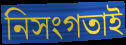
নিসংগতাই